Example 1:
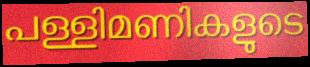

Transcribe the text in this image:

പള്ളിമണികളുടെ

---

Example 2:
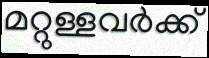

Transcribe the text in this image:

മറ്റുള്ളവർക്ക്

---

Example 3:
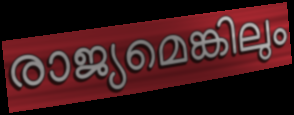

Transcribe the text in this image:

രാജ്യമെങ്കിലും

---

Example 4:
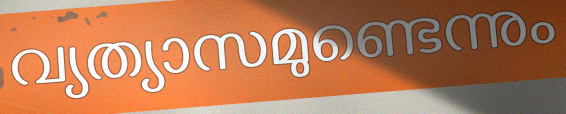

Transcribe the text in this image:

വ്യത്യാസമുണ്ടെന്നും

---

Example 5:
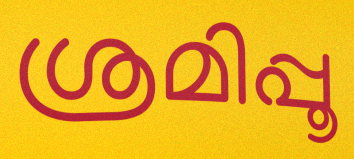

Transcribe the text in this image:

ശ്രമിപ്പൂ